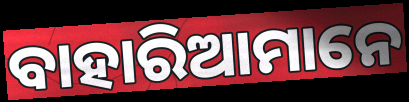
ବାହାରିଆମାନେ